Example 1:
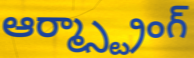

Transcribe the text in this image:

ఆర్మ్స్ట్రాంగ్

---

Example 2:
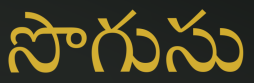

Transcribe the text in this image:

సొగుసు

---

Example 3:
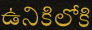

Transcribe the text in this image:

ఉనికిలోకి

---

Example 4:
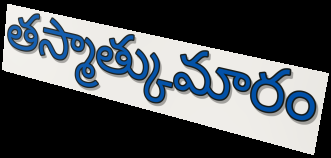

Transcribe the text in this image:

తస్మాత్కుమారం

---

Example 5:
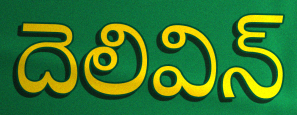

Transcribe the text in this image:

దెలివిన్